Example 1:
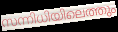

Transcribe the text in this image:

സന്നിധിയിലെത്തും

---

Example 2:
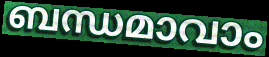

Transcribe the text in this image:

ബന്ധമാവാം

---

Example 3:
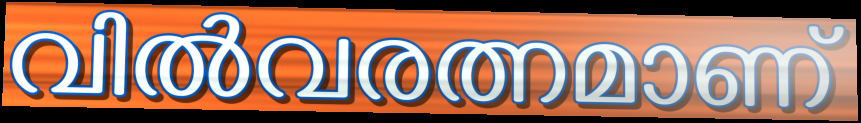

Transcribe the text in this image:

വിൽവരത്നമാണ്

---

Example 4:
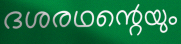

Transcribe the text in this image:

ദശരഥന്റെയും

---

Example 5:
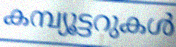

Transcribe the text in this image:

കമ്പ്യൂട്ടറുകൾ